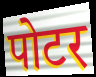
पोटर